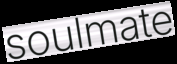
soulmate